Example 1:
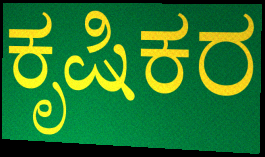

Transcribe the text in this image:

ಕೃಷಿಕರ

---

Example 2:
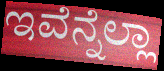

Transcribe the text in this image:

ಇವೆನ್ನೆಲ್ಲಾ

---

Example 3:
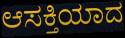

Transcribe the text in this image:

ಆಸಕ್ತಿಯಾದ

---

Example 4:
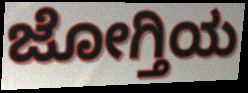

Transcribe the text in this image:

ಜೋಗ್ತಿಯ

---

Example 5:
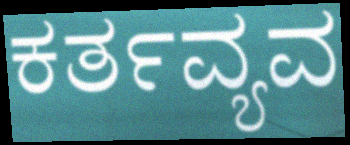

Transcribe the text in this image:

ಕರ್ತವ್ಯವ